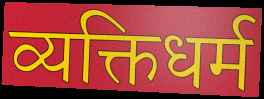
व्यक्तिधर्म